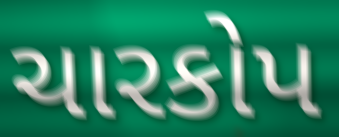
ચારકોપ